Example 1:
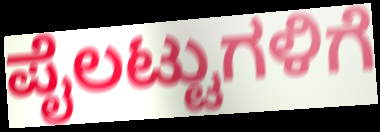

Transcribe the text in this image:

ಪೈಲಟ್ಟುಗಳಿಗೆ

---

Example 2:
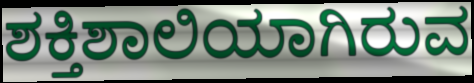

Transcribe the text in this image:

ಶಕ್ತಿಶಾಲಿಯಾಗಿರುವ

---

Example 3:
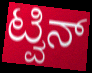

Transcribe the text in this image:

ಟ್ವಿನ್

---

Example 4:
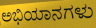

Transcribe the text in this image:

ಅಭಿಯಾನಗಳು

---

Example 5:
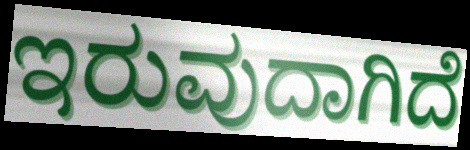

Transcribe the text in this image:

ಇರುವುದಾಗಿದೆ